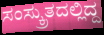
ಸಂಸ್ಕ್ರುತದಲ್ಲಿದ್ದ